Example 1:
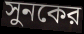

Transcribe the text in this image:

সুনকের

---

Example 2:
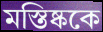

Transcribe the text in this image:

মস্তিষ্ককে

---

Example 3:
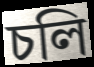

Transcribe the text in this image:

চলি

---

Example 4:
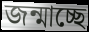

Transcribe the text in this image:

জন্মাচ্ছে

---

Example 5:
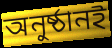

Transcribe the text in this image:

অনুষ্ঠানই